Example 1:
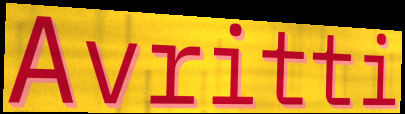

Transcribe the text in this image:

Avritti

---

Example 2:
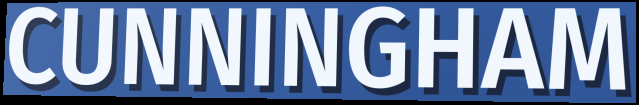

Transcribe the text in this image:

CUNNINGHAM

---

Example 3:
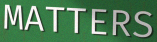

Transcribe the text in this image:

MATTERS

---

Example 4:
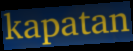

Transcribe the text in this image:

kapatan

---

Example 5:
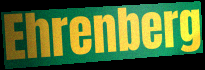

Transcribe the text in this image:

Ehrenberg